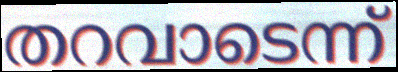
തറവാടെന്ന്